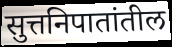
सुत्तनिपातांतील